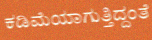
ಕಡಿಮೆಯಾಗುತ್ತಿದ್ದಂತೆ